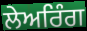
ਲੇਅਰਿੰਗ